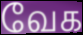
வேக